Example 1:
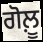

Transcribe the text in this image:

ਗੋਲ਼ੂ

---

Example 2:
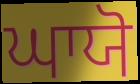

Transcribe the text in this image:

ਘਾਯੋ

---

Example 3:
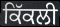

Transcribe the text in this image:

ਕਿੱਕਲੀ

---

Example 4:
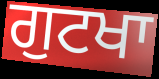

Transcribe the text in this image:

ਗੁਟਖਾ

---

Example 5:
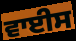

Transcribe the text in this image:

ਵਾਈਸ